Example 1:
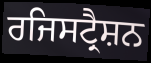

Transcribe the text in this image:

ਰਜਿਸਟ੍ਰੈਸ਼ਨ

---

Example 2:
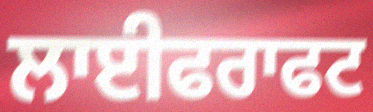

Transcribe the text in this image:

ਲਾਈਫਰਾਫਟ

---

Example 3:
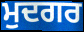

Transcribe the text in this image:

ਮੁਦਗਰ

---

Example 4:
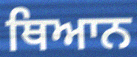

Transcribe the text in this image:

ਥਿਆਨ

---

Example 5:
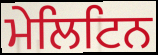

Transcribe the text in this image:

ਮੇਲਿਟਿਨ